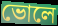
ভোলে